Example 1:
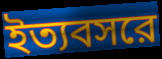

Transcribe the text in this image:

ইত্যবসরে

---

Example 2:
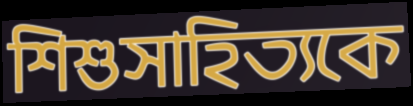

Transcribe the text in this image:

শিশুসাহিত্যকে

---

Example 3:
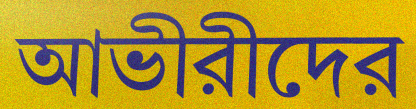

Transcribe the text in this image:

আভীরীদের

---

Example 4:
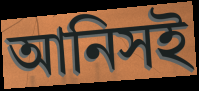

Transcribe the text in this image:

আনিসই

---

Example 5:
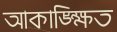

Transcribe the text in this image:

আকাঙ্ক্ষিত